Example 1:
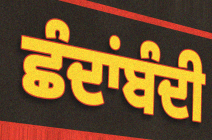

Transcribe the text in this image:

ਛੰਦਾਂਬੰਦੀ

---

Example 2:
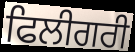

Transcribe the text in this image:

ਫਿਲੀਗਰੀ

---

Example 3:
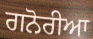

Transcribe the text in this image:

ਗਨੋਰੀਆ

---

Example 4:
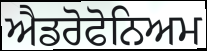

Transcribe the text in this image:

ਐਡਰੋਫੋਨਿਅਮ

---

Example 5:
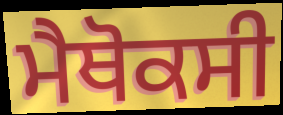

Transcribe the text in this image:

ਮੈਥੋਕਸੀ